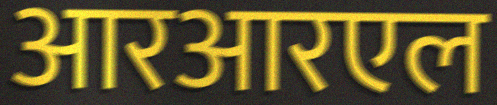
आरआरएल